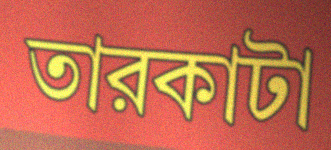
তারকাটা